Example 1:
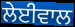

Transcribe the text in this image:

ਲੇਈਵਾਲ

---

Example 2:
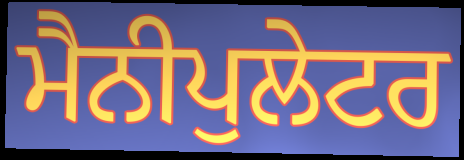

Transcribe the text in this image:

ਮੈਨੀਪੁਲੇਟਰ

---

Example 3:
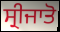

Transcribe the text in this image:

ਸ੍ਰੀਜਾਤੋ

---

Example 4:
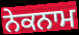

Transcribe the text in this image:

ਨੇਕਨਾਮ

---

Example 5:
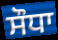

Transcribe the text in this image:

ਸੌਧਾ